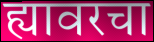
ह्यावरचा